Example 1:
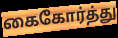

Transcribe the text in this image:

கைகோர்த்து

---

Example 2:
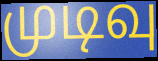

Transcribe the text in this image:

முடிவு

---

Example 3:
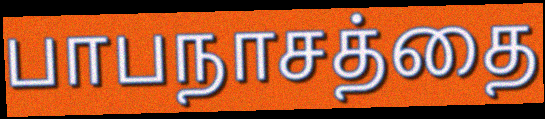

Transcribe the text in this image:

பாபநாசத்தை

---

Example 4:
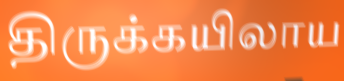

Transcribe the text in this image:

திருக்கயிலாய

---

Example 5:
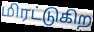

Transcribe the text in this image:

மிரட்டுகிற